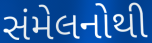
સંમેલનોથી